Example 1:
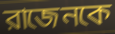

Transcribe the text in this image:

রাজেনকে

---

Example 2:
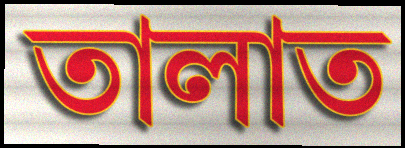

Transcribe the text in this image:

তালাত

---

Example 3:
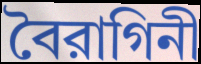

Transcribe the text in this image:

বৈরাগিনী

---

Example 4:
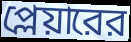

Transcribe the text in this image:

প্লেয়ারের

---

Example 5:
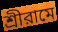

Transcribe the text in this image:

শ্রীরামে